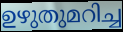
ഉഴുതുമറിച്ച